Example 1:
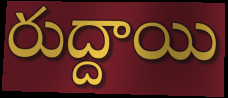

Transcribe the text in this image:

రుద్దాయి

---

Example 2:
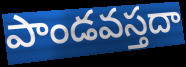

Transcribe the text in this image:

పాండవస్తదా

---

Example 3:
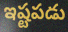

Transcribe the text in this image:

ఇష్టపడు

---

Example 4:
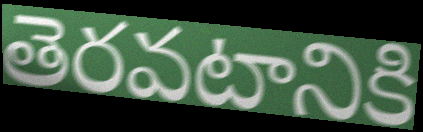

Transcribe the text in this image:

తెరవటానికి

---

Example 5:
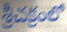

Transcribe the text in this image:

శ్రీచక్రంలో